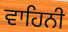
ਵਾਹਿਨੀ